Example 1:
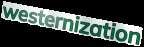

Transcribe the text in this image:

westernization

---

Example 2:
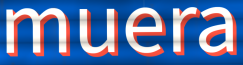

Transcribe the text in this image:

muera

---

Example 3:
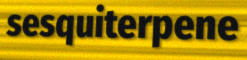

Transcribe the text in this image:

sesquiterpene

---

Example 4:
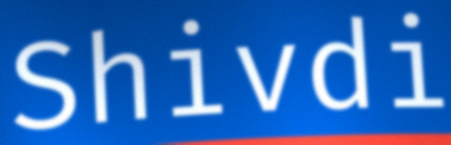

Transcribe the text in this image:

Shivdi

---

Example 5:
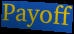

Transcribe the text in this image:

Payoff